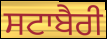
ਸਟਾਬੈਰੀ